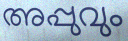
അപ്പുവും